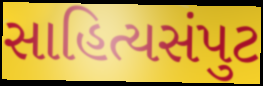
સાહિત્યસંપુટ